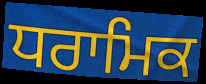
ਧਰਾਮਿਕ